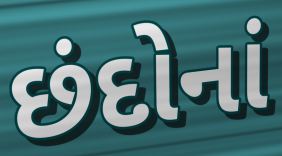
છંદોનાં